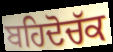
ਬਹਿਦੋਚੱਕ